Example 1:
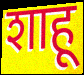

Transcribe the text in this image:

शाहू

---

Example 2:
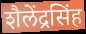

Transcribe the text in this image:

शैलेंद्रसिंह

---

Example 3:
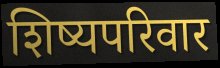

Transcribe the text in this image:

शिष्यपरिवार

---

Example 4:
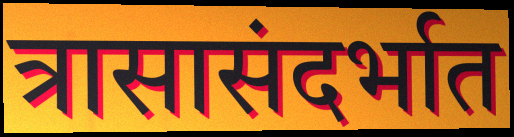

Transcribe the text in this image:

त्रासासंदर्भात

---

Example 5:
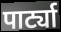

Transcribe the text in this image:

पार्ट्या